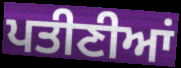
ਪਤੀਣੀਆਂ